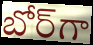
బోర్‌గా